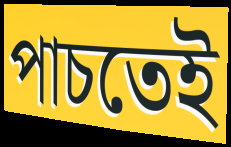
পাচতেই